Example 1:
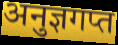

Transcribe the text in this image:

अनुज्ञगप्त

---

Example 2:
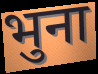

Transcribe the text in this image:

भुना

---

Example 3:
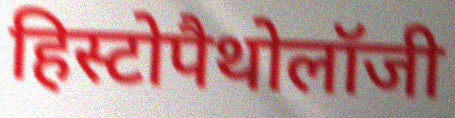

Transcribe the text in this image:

हिस्टोपैथोलॉजी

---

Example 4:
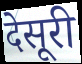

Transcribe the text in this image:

देसूरी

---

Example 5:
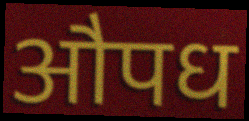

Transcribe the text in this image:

औपध